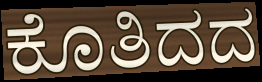
ಕೊತಿದದ